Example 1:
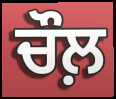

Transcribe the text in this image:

ਚੌਲ਼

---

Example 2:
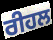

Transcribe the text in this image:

ਰੀਹਲ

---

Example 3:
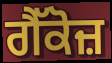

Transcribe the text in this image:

ਗੈੱਕੋਜ਼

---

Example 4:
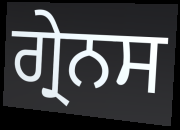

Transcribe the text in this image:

ਗ੍ਰੇਨਸ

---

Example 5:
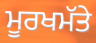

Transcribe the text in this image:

ਮੂਰਖਮੱਤੇ